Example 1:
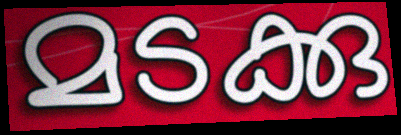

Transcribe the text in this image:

മടക്കു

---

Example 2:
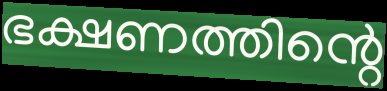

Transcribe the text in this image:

ഭക്ഷണത്തിന്റെ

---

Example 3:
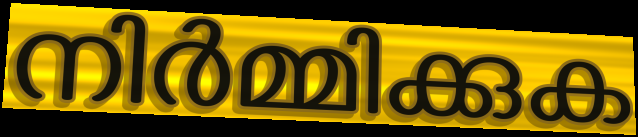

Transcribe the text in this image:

നിർമ്മിക്കുക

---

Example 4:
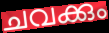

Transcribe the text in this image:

ചവക്കും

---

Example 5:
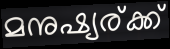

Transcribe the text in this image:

മനുഷ്യര്ക്ക്